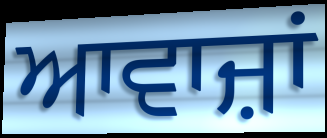
ਆਵਾਜ਼ਾਂ